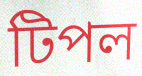
টিপল